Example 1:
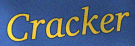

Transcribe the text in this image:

Cracker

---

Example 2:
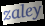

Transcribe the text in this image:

zaley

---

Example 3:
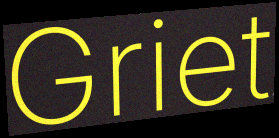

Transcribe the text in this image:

Griet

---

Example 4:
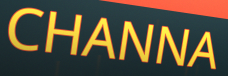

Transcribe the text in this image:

CHANNA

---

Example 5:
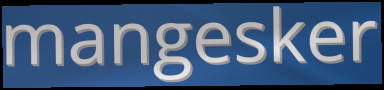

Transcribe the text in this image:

mangesker